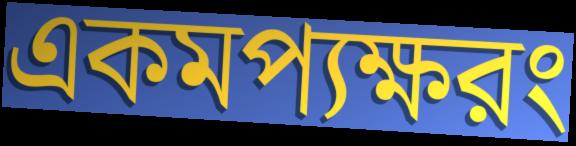
একমপ্যক্ষরং